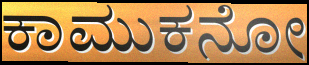
ಕಾಮುಕನೋ